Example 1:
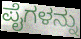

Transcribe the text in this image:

ಪೈಗಳನ್ನು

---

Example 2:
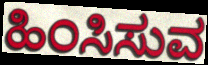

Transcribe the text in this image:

ಹಿಂಸಿಸುವ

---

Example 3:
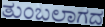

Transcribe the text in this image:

ತುಂಬಲಾಗದ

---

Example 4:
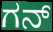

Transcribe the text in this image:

ಗನ್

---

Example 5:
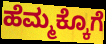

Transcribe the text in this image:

ಹೆಮ್ಮಕ್ಕೊಗೆ